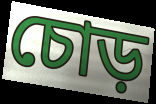
চোড়